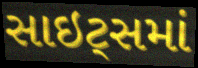
સાઇટ્સમાં